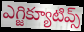
ఎగ్జిక్యూటివ్స్